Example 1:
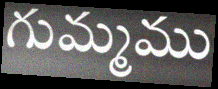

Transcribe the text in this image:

గుమ్మము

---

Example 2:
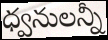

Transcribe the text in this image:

ధ్వనులన్నీ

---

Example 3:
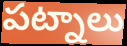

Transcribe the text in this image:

పట్నాలు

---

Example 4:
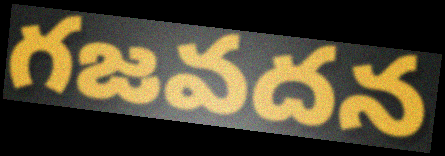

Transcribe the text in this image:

గజవదన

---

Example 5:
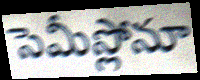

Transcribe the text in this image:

సెమీస్లోనూ